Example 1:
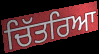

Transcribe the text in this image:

ਚਿੱਤਰਿਆ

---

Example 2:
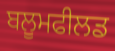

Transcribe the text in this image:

ਬਲੂਮਫੀਲਡ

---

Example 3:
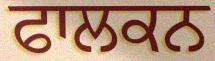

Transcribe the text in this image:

ਫਾਲਕਨ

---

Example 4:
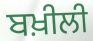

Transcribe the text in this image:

ਬਖ਼ੀਲੀ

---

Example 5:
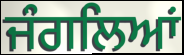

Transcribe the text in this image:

ਜੰਗਲਿਆਂ